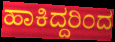
ಹಾಕಿದ್ದರಿಂದ